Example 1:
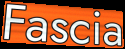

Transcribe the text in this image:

Fascia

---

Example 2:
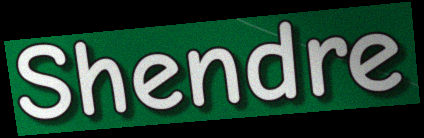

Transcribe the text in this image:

Shendre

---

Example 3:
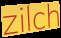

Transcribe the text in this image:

zilch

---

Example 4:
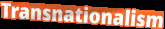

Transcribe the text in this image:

Transnationalism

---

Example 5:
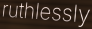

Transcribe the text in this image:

ruthlessly